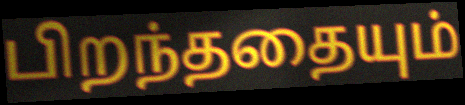
பிறந்ததையும்